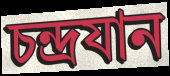
চন্দ্রযান